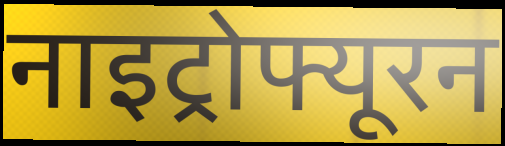
नाइट्रोफ्यूरन